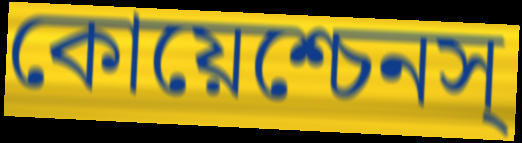
কোয়েশ্চেনস্